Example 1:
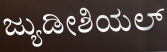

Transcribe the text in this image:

ಜ್ಯುಡೀಶಿಯಲ್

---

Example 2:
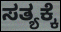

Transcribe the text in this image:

ಸತ್ಯಕ್ಕೆ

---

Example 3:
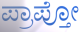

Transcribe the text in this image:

ಪ್ರಾಪ್ತೋ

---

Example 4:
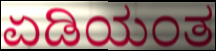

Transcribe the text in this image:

ಏಡಿಯಂತ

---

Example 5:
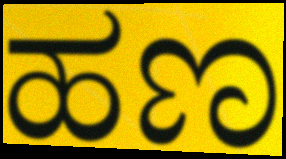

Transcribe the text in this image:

ಹಣ